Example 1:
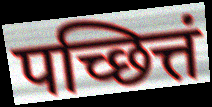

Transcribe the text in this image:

पच्छित्तं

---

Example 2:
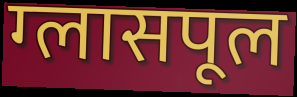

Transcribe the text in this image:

ग्लासपूल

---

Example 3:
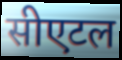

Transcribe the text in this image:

सीएटल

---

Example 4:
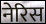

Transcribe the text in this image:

नेरिस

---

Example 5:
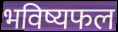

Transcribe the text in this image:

भविष्यफल